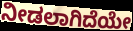
ನೀಡಲಾಗಿದೆಯೇ